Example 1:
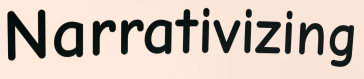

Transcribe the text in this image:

Narrativizing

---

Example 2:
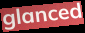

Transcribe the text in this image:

glanced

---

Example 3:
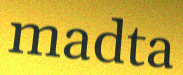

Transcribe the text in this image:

madta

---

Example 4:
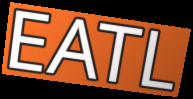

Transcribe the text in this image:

EATL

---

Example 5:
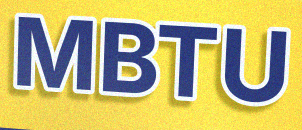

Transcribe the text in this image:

MBTU